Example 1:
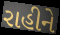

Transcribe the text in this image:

રાહીને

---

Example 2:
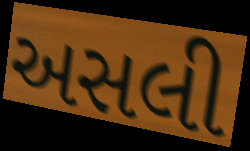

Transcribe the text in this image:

અસલી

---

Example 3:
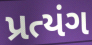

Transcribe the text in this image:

પ્રત્યંગ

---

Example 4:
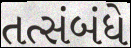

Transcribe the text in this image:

તત્સંબંધે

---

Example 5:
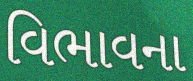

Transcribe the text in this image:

વિભાવના